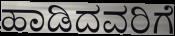
ಹಾಡಿದವರಿಗೆ